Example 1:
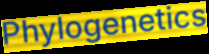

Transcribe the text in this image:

Phylogenetics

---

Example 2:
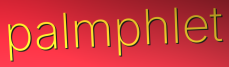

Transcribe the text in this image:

palmphlet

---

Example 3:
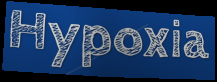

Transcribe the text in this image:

Hypoxia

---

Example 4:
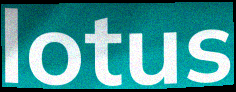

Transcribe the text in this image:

lotus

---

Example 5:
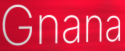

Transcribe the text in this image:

Gnana